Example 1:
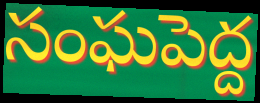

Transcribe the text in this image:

సంఘపెద్ద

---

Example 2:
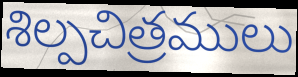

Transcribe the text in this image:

శిల్పచిత్రములు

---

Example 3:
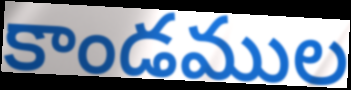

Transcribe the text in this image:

కాండముల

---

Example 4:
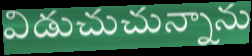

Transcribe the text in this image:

విడుచుచున్నాను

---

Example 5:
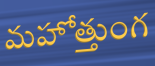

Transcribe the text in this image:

మహోత్తుంగ